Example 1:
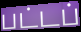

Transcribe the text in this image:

பட்டப்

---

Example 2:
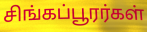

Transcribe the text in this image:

சிங்கப்பூரர்கள்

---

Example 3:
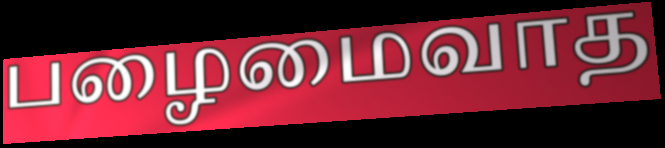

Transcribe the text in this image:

பழைமைவாத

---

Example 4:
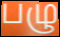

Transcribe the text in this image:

பழு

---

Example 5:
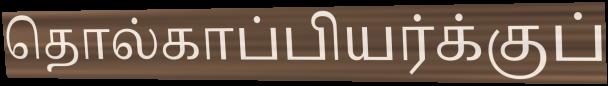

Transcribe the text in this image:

தொல்காப்பியர்க்குப்